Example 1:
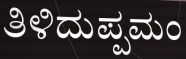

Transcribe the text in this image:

ತಿಳಿದುಪ್ಪಮಂ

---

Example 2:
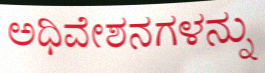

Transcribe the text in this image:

ಅಧಿವೇಶನಗಳನ್ನು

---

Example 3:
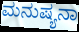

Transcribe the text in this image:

ಮನುಷ್ಯನಾ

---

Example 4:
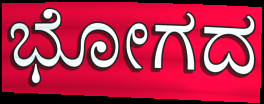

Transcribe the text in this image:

ಭೋಗದ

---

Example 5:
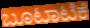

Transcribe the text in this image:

ಬೂಟಾಟಿಕೆ